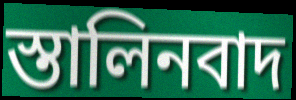
স্তালিনবাদ